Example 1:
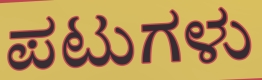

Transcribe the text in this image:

ಪಟುಗಳು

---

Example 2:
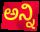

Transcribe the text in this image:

ಅನ್ನಿ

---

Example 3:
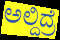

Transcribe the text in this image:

ಅಲ್ದಿದ್ರೆ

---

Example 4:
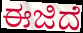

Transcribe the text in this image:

ಈಜಿದೆ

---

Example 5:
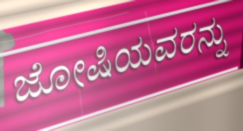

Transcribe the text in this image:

ಜೋಷಿಯವರನ್ನು